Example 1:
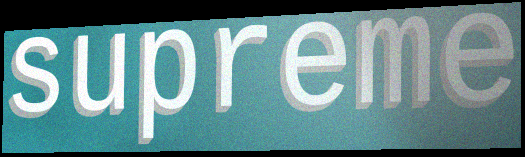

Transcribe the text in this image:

supreme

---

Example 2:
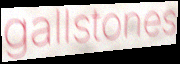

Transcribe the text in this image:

gallstones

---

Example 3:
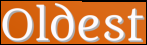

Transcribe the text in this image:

Oldest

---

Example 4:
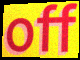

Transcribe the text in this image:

off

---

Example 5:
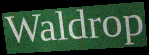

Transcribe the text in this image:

Waldrop